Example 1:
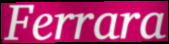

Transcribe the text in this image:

Ferrara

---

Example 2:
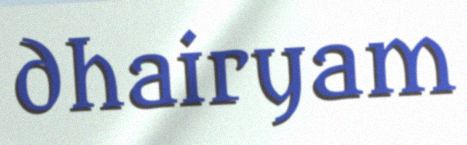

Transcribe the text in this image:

dhairyam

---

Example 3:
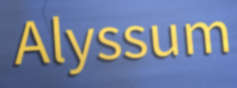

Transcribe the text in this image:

Alyssum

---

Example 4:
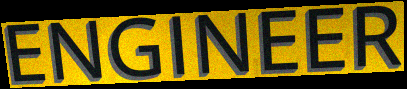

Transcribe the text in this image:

ENGINEER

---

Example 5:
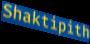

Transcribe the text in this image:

Shaktipith